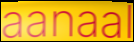
aanaal